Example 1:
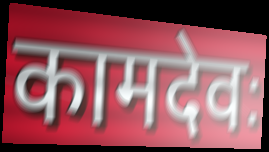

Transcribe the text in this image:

कामदेवः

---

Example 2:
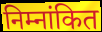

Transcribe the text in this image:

निम्नांकित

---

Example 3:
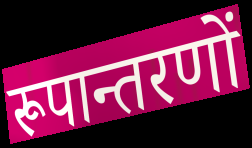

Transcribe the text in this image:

रूपान्तरणों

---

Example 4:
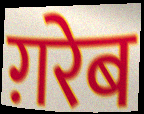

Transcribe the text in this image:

ग़रेब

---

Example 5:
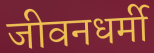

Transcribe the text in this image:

जीवनधर्मी